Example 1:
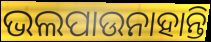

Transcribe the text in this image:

ଭଲପାଉନାହାନ୍ତି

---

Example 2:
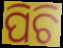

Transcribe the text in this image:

ପିଚି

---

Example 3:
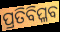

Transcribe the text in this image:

ପ୍ରତିବିପ୍ଳବ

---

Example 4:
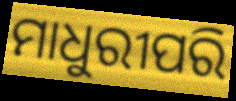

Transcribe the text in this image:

ମାଧୁରୀପରି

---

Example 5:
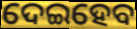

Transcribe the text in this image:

ଦେଇହେବ